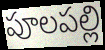
పూలపల్లి